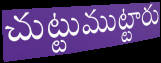
చుట్టుముట్టారు